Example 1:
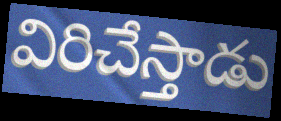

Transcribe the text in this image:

విరిచేస్తాడు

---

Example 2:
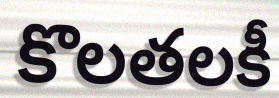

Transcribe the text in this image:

కొలతలకీ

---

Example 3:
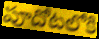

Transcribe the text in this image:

పూదోటలోకి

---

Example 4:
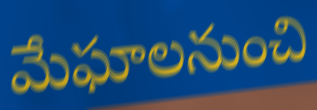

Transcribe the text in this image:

మేఘాలనుంచి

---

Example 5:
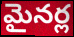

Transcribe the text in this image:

మైనర్ల